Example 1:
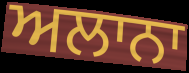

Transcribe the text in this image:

ਅਲਾਨਾ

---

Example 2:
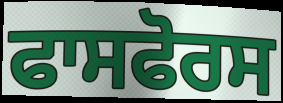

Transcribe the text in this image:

ਫਾਸਫੋਰਸ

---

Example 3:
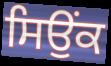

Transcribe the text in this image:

ਸਿਉਂਕ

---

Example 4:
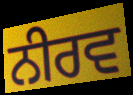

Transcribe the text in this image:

ਨੀਰਵ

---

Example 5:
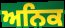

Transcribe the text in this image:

ਅਨਿਕ